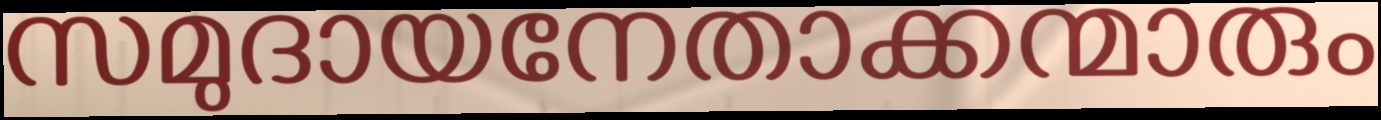
സമുദായനേതാക്കന്മാരും